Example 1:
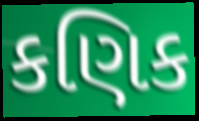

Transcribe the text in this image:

કણિક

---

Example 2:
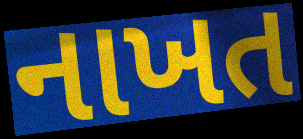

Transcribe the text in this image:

નાખત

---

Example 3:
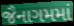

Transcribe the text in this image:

જૈનાગમમાં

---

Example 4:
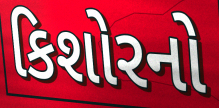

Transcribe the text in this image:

કિશોરનો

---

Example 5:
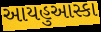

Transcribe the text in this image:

આયહુઆસ્કા